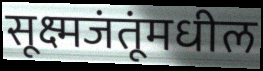
सूक्ष्मजंतूंमधील